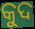
କୁଦ